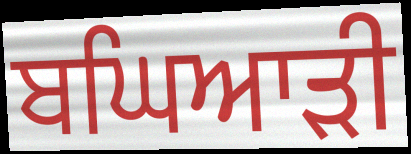
ਬਘਿਆੜੀ